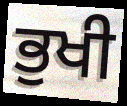
ਭੁਖੀ